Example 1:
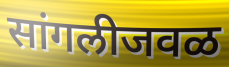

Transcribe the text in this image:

सांगलीजवळ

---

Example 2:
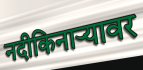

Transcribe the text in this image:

नदीकिनाऱ्यावर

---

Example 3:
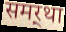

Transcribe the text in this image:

समर्था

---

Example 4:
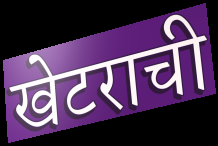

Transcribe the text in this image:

खेटराची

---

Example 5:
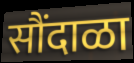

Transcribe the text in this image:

सौंदाळा